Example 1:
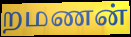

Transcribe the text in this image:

றமணன்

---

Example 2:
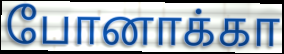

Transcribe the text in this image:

போனாக்கா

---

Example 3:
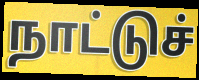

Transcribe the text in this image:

நாட்டுச்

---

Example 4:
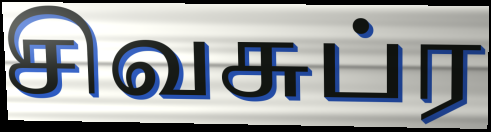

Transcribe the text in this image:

சிவசுப்ர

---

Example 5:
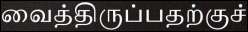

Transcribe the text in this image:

வைத்திருப்பதற்குச்